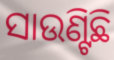
ସାଉଣ୍ଟିଛି